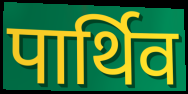
पार्थिव